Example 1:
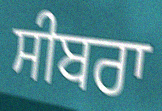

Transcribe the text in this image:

ਸੀਬਰਾ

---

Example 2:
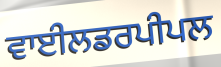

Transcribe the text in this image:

ਵਾਈਲਡਰਪੀਪਲ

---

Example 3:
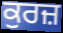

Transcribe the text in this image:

ਕੁਰਜ਼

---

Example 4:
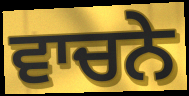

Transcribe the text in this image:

ਵਾਚਨੇ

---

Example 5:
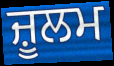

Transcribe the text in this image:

ਜ਼ੂਲਮ